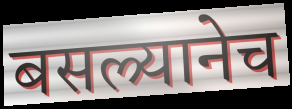
बसल्यानेच